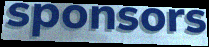
sponsors